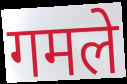
गमले